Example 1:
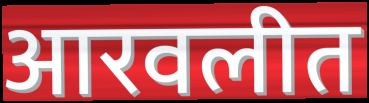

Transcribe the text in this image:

आरवलीत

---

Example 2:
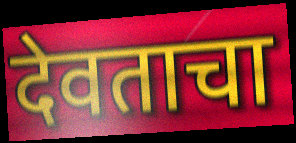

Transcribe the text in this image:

देवताचा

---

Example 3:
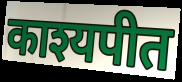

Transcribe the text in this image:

काश्यपीत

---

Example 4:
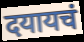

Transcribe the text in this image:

दयायचं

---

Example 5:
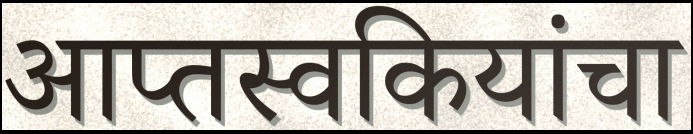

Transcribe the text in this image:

आप्तस्वकियांचा